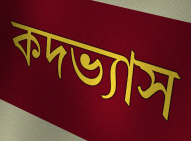
কদভ্যাস